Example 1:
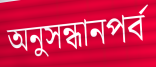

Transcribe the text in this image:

অনুসন্ধানপর্ব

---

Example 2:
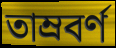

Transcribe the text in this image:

তাম্রবর্ণ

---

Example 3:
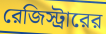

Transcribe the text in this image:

রেজিস্ট্রারের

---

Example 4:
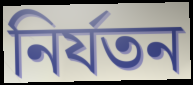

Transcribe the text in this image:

নির্যতন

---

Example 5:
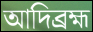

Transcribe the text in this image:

আদিব্রহ্ম